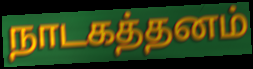
நாடகத்தனம்